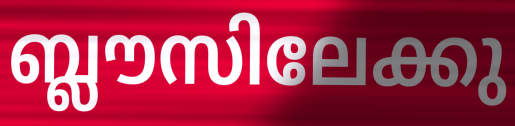
ബ്ലൗസിലേക്കു